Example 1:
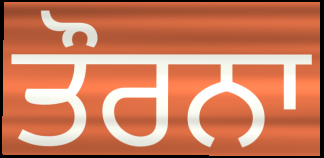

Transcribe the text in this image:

ਤੌਰਨਾ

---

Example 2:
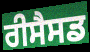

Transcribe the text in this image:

ਰੀਸੈਸਡ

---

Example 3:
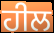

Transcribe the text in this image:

ਹੀਲ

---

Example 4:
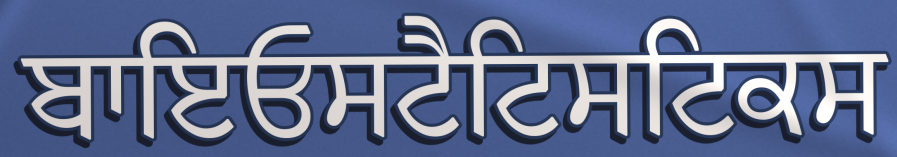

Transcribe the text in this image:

ਬਾਇਓਸਟੈਟਿਸਟਿਕਸ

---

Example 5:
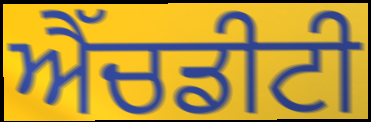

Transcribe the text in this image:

ਐੱਚਡੀਟੀ